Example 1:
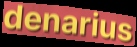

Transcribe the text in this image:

denarius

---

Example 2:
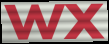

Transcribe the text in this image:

wx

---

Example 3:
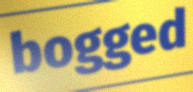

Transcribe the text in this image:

bogged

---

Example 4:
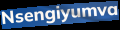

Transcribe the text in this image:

Nsengiyumva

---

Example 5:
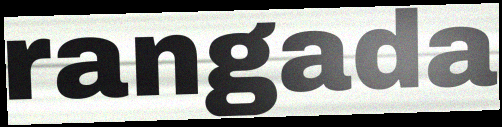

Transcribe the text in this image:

rangada